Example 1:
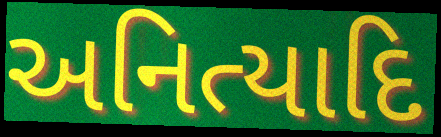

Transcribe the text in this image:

અનિત્યાદિ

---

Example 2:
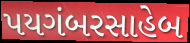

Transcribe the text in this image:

પયગંબરસાહેબ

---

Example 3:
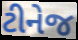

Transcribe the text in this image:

ટીનેજ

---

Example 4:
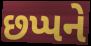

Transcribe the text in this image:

છપ્પને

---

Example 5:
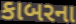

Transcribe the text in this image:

કાબરના